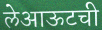
लेआऊटची